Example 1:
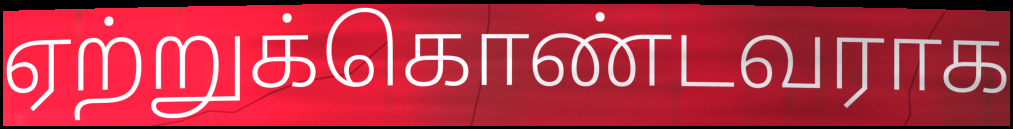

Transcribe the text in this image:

ஏற்றுக்கொண்டவராக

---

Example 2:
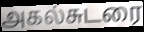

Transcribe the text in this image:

அகல்சுடரை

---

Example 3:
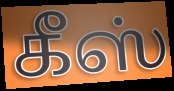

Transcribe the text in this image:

கீஸ்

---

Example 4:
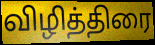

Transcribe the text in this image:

விழித்திரை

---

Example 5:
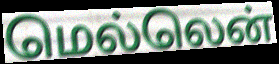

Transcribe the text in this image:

மெல்லென்